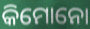
କିମୋନୋ